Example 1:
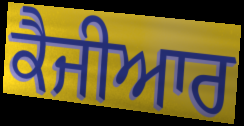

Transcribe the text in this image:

ਕੈਜੀਆਰ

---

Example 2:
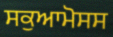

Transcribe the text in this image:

ਸਕੁਆਮੋਸਸ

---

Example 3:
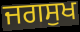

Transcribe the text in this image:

ਜਗਸੁਖ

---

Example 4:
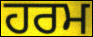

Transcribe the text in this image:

ਹਰਮ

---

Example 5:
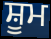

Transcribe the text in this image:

ਸ਼ੂਮ